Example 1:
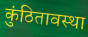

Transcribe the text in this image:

कुंठितावस्था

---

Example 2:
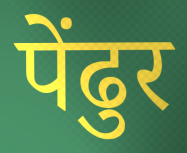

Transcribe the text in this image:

पेंढुर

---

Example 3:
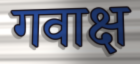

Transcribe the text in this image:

गवाक्ष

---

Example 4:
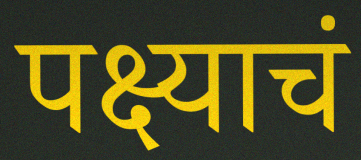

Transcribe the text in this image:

पक्ष्याचं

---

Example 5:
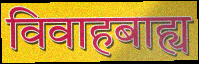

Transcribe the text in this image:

विवाहबाह्य